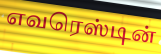
எவரெஸ்டின்